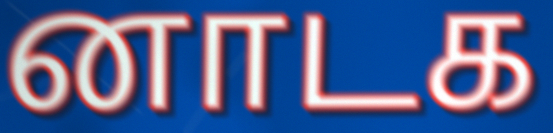
னாடக